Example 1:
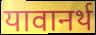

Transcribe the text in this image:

यावानर्थ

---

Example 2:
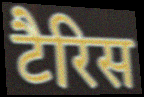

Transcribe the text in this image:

टैरिस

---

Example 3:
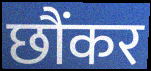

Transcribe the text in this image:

छौंकर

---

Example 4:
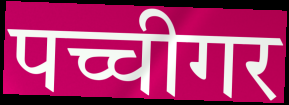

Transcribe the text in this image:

पच्चीगर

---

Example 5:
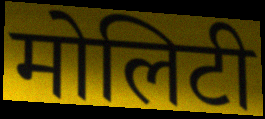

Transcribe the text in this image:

मोलिटी